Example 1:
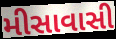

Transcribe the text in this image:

મીસાવાસી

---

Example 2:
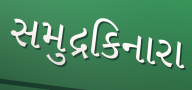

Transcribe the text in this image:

સમુદ્રકિનારા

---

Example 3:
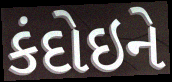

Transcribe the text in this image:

કંદોઇને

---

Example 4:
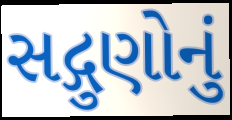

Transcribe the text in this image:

સદ્ગુણોનું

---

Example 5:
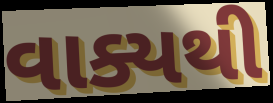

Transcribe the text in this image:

વાક્યથી